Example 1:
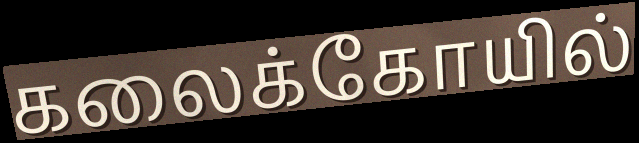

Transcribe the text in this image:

கலைக்கோயில்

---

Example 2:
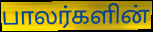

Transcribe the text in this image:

பாலர்களின்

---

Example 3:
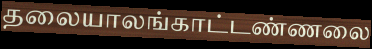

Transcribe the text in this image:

தலையாலங்காட்டண்ணலை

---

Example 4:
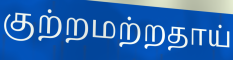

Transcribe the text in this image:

குற்றமற்றதாய்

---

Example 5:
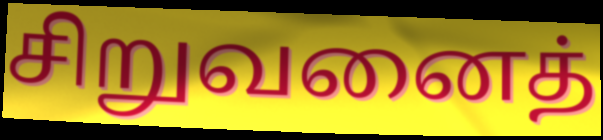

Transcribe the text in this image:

சிறுவனைத்